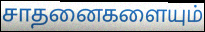
சாதனைகளையும்